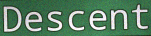
Descent